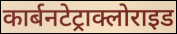
कार्बनटेट्राक्लोराइड